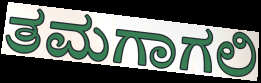
ತಮಗಾಗಲಿ